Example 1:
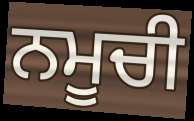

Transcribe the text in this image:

ਨਮੂਚੀ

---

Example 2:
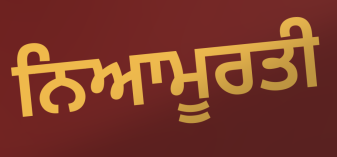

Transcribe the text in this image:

ਨਿਆਮੂਰਤੀ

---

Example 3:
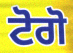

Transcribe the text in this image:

ਟੋਗੋ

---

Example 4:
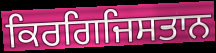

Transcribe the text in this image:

ਕਿਰਗਿਜਿਸਤਾਨ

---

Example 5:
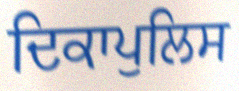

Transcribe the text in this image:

ਦਿਕਾਪੁਲਿਸ